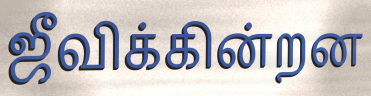
ஜீவிக்கின்றன